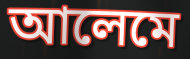
আলেমে